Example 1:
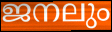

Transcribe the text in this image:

ജനലും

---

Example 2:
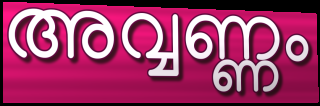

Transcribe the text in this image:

അവ്വണ്ണം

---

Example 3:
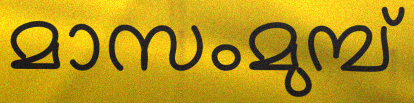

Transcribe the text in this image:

മാസംമുമ്പ്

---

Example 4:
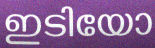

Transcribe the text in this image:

ഇടിയോ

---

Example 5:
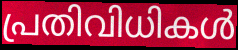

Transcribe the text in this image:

പ്രതിവിധികൾ